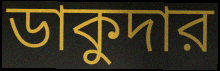
ডাকুদার